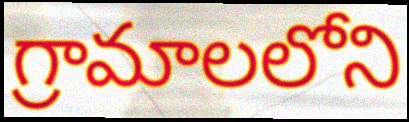
గ్రామాలలోని